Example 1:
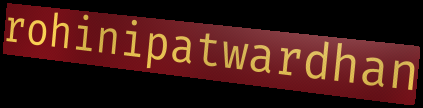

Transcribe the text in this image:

rohinipatwardhan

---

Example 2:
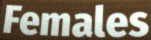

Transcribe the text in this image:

Females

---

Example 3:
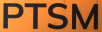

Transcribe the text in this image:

PTSM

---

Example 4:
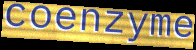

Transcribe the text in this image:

coenzyme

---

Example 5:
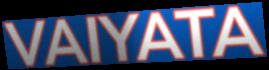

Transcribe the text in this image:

VAIYATA